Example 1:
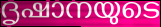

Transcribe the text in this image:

ദൃഷാനയുടെ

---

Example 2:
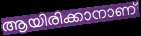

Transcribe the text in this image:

ആയിരിക്കാനാണ്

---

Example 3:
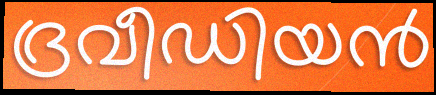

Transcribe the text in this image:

ദ്രവീഡിയൻ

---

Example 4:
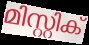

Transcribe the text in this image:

മിസ്റ്റിക്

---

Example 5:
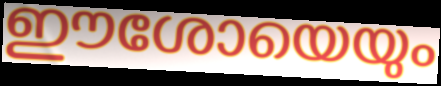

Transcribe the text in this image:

ഈശോയെയും